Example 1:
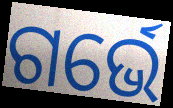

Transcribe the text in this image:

ଗର୍ଭେ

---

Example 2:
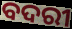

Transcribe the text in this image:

ବଦରୀ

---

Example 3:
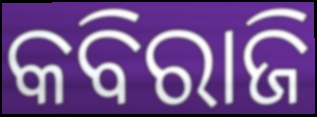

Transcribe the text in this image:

କବିରାଜି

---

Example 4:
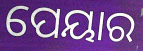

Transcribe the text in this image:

ପେୟାର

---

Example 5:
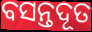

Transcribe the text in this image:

ବସନ୍ତଦୂତ